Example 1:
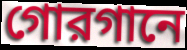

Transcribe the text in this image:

গোরগানে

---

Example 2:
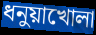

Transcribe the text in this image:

ধনুয়াখোলা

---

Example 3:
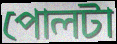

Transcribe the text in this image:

পোলটা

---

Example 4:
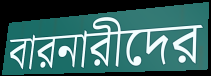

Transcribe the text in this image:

বারনারীদের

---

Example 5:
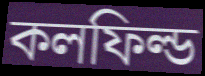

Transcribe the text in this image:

কলফিল্ড